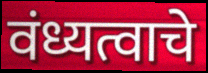
वंध्यत्वाचे